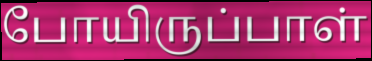
போயிருப்பாள்